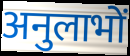
अनुलाभों